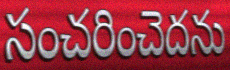
సంచరించెదను